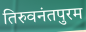
तिरुवनंतपुरम